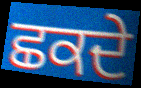
ਛਕਦੇ